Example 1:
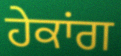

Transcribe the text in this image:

ਹੇਕਾਂਗ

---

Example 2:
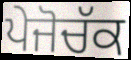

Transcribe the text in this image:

ਪੇਜੋਚੱਕ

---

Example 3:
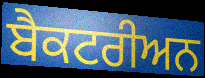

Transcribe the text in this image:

ਬੈਕਟਰੀਅਨ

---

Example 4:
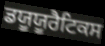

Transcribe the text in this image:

ਡਯੂਯੂਰੈਟਿਕਸ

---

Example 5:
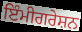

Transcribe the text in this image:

ਇੰਮੀਗਰੇਸ਼ਨ